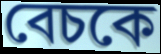
বেচকে